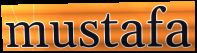
mustafa